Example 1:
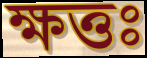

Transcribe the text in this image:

ক্ষত্তঃ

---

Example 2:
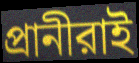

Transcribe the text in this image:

প্রানীরাই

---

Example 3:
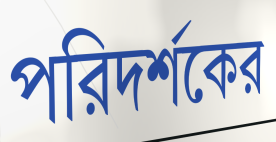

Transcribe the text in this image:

পরিদর্শকের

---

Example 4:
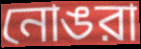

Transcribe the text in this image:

নোঙরা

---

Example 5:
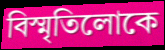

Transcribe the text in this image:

বিস্মৃতিলোকে